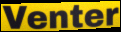
Venter